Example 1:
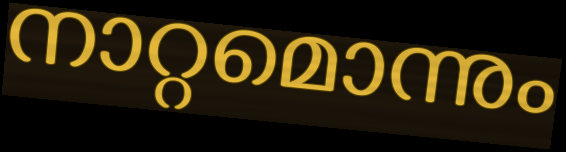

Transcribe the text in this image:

നാറ്റമൊന്നും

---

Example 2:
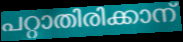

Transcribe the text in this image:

പറ്റാതിരിക്കാന്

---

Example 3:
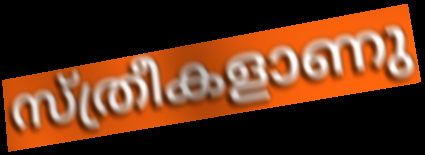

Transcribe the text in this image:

സ്ത്രീകളാണു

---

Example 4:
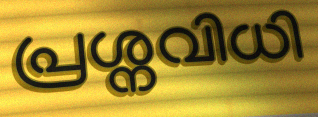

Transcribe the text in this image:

പ്രശ്നവിധി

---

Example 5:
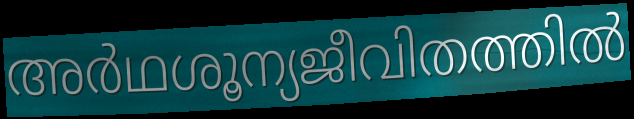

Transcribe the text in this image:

അർഥശൂന്യജീവിതത്തിൽ